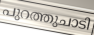
പുറത്തുചാടി